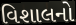
વિશાલનો